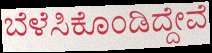
ಬೆಳೆಸಿಕೊಂಡಿದ್ದೇವೆ